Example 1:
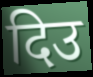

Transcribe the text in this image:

दिउ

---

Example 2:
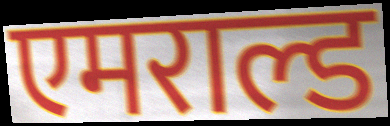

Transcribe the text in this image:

एमराल्ड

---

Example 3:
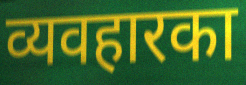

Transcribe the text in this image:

व्यवहारका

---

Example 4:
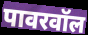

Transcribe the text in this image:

पावरवॉल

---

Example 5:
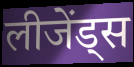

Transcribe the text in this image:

लीजेंड्स